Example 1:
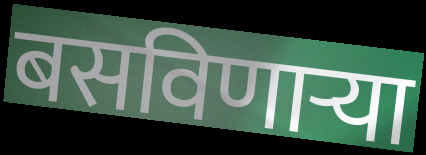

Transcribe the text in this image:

बसविणार्‍या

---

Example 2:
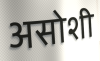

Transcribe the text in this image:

असोशी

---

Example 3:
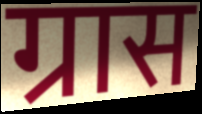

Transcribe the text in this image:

ग्रास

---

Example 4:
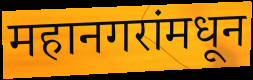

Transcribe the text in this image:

महानगरांमधून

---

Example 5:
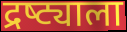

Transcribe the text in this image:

द्रष्ट्याला